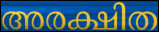
അരക്ഷിത